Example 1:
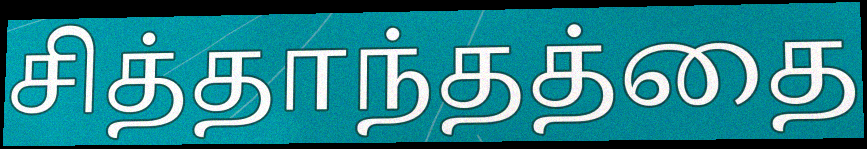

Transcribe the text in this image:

சித்தாந்தத்தை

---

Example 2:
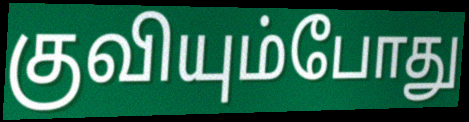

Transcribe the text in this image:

குவியும்போது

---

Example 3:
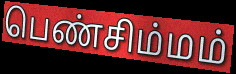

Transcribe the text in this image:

பெண்சிம்மம்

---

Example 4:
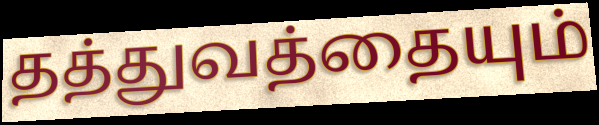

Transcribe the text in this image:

தத்துவத்தையும்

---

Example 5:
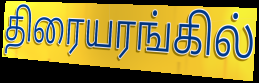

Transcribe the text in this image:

திரையரங்கில்